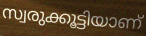
സ്വരുക്കൂട്ടിയാണ്